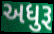
અધુરૂ